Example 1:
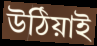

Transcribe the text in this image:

উঠিয়াই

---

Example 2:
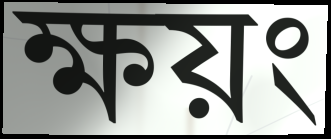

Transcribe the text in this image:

ক্ষয়ং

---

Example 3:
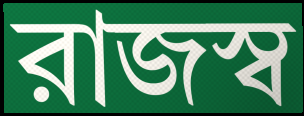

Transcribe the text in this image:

রাজস্ব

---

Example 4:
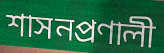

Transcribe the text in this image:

শাসনপ্রণালী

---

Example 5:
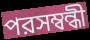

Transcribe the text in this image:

পরসম্বন্ধী